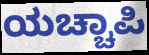
ಯಚ್ಚಾಪಿ